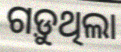
ଗଡ଼ୁଥିଲା